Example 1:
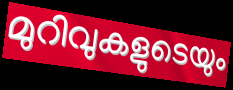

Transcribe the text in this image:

മുറിവുകളുടെയും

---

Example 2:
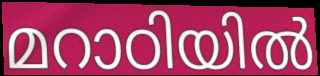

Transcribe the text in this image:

മറാഠിയിൽ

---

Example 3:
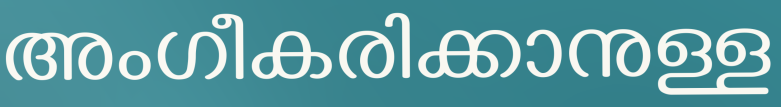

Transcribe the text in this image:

അംഗീകരിക്കാനുള്ള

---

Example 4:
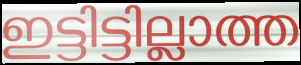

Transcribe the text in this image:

ഇട്ടിട്ടില്ലാത്ത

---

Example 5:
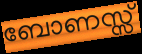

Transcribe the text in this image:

ബോണസ്സ്